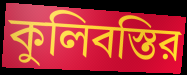
কুলিবস্তির